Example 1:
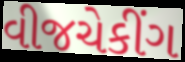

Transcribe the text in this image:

વીજચેકીંગ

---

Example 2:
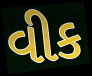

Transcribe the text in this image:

વીક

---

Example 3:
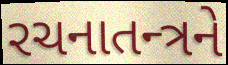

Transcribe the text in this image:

રચનાતન્ત્રને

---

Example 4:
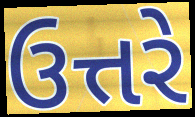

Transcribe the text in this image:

ઉત્તરે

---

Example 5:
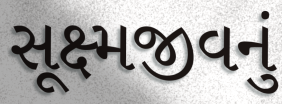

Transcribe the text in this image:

સૂક્ષ્મજીવનું